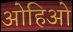
ओहिओ